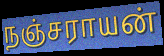
நஞ்சராயன்